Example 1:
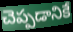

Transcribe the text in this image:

చెప్పడానికే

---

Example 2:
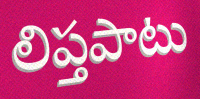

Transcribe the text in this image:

లిప్తపాటు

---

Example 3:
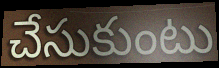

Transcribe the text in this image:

చేసుకుంటు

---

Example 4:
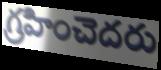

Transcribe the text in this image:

గ్రహించెదరు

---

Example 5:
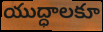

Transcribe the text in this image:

యుద్ధాలకూ